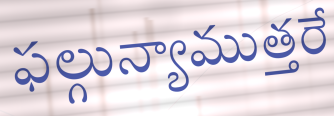
ఫల్గున్యాముత్తరే